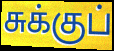
சுக்குப்